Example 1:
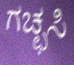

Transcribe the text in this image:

ಗಚ್ಛಸಿ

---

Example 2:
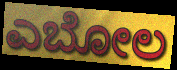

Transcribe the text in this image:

ಎಬೋಲ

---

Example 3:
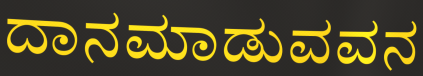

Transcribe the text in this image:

ದಾನಮಾಡುವವನ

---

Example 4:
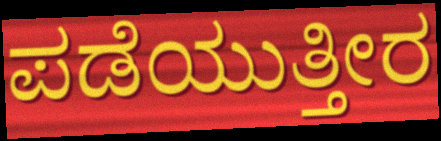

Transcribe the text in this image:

ಪಡೆಯುತ್ತೀರ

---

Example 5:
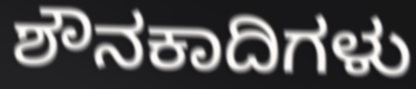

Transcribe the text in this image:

ಶೌನಕಾದಿಗಳು